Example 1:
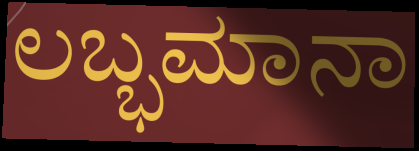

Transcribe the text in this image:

ಲಬ್ಭಮಾನಾ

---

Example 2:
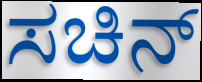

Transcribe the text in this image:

ಸಚಿನ್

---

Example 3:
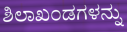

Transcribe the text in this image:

ಶಿಲಾಖಂಡಗಳನ್ನು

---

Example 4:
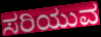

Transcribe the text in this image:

ಸರಿಯುವ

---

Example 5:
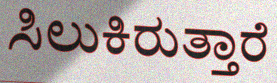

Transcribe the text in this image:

ಸಿಲುಕಿರುತ್ತಾರೆ